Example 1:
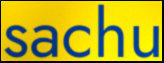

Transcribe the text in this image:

sachu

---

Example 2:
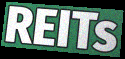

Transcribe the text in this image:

REITs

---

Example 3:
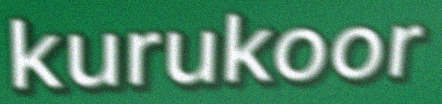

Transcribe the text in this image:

kurukoor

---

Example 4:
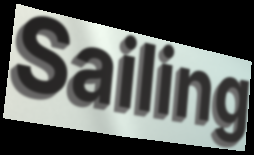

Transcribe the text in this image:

Sailing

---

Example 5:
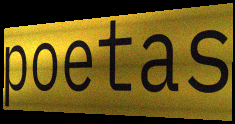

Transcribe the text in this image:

poetas